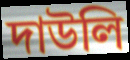
দাউলি